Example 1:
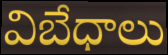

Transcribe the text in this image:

విబేధాలు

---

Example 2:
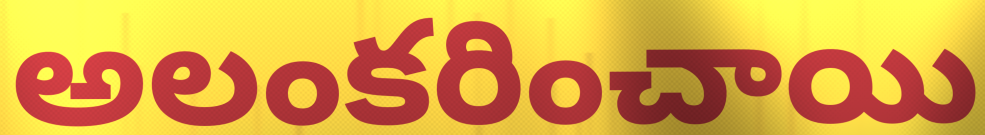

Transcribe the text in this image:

అలంకరించాయి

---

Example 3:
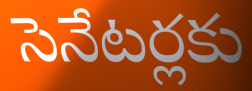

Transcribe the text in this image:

సెనేటర్లకు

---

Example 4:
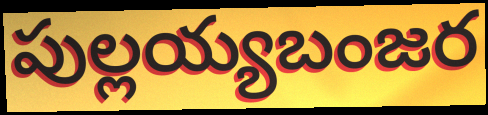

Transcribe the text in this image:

పుల్లయ్యబంజర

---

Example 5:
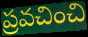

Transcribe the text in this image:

ప్రవచించి